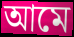
আমে